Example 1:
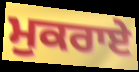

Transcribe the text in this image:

ਮੁਕਰਾਏ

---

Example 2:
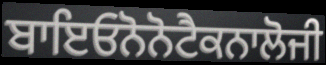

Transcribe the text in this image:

ਬਾਇਓਨੋਨੋਟੈਕਨਾਲੋਜੀ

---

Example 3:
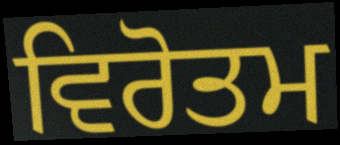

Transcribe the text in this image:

ਵਿਰੋਤਮ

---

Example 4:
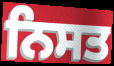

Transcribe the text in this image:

ਨਿਸਤ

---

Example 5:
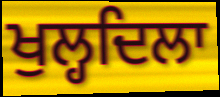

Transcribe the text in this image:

ਖੁਲ੍ਹਦਿਲਾ